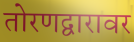
तोरणद्वारावर